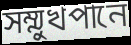
সম্মুখপানে